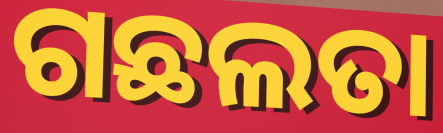
ଗଛଲତା